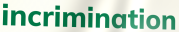
incrimination